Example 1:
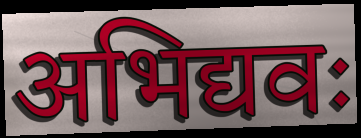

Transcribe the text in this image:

अभिद्यवः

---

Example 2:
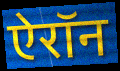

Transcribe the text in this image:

ऐरॉन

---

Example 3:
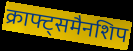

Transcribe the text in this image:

क्राफ्ट्समैनशिप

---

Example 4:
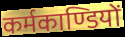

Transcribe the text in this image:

कर्मकाण्डियों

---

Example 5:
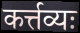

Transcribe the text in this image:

कर्त्तव्यः